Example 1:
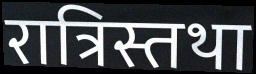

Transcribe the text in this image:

रात्रिस्तथा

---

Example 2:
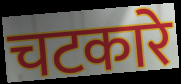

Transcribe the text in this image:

चटकारे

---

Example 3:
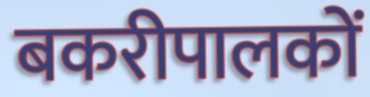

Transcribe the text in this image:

बकरीपालकों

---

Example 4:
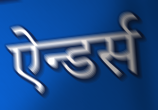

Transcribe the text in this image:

ऐन्डर्स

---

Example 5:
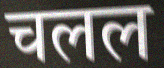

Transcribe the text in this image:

चलल